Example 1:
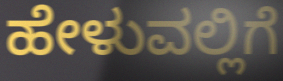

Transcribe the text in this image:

ಹೇಳುವಲ್ಲಿಗೆ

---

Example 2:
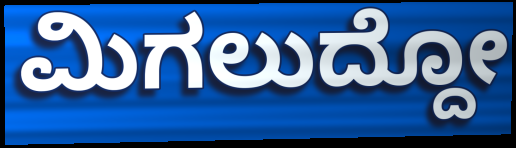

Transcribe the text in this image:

ಮಿಗಲುದ್ದೋ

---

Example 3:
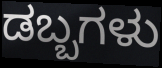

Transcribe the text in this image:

ಡಬ್ಬಗಳು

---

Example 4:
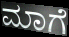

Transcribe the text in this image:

ಮಾಗೆ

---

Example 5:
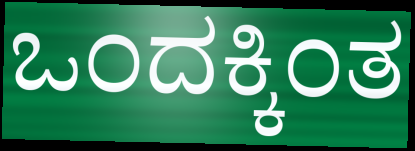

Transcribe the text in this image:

ಒಂದಕ್ಕಿಂತ